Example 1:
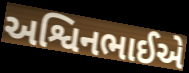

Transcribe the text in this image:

અશ્વિનભાઈએ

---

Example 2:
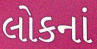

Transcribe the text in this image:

લોકનાં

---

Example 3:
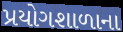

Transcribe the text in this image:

પ્રયોગશાળાના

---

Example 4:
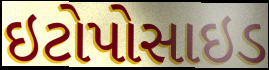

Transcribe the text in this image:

ઇટોપોસાઇડ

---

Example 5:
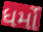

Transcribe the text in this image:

ધર્મો